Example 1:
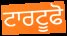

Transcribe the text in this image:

ਟਾਰਟੂਫੋ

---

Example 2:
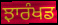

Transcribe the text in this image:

ਝਾਰੰਖਡ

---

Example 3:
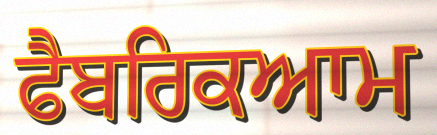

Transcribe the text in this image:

ਫੈਬਰਿਕਆਮ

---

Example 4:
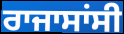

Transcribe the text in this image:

ਰਾਜਾਸਾਂਸੀ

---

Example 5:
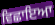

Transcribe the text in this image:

ਵਿਛਾਇਆ